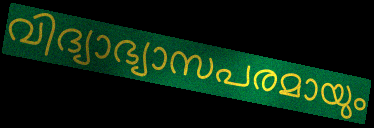
വിദ്യാഭ്യാസപരമായും